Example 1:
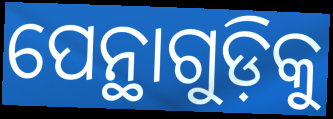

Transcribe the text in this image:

ପେନ୍ଥାଗୁଡ଼ିକୁ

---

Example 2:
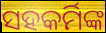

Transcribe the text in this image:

ସହକର୍ମିଙ୍କ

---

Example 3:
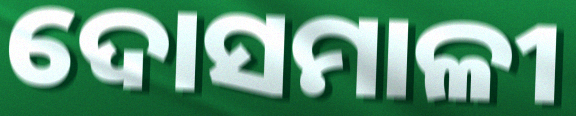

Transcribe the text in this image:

ଦୋସମାଳୀ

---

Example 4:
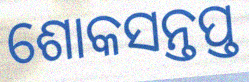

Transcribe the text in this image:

ଶୋକସନ୍ତପ୍ତ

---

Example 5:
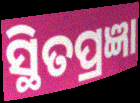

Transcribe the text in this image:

ସ୍ଥିତପ୍ରଜ୍ଞା